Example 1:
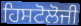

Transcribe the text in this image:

ਹਿਸਟੋਲੋਜੀ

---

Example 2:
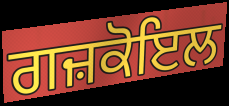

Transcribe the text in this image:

ਗਜ਼ਕੋਇਲ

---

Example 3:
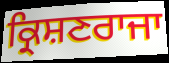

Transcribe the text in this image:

ਕ੍ਰਿਸ਼ਣਰਾਜਾ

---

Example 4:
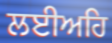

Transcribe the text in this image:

ਲਈਅਹਿ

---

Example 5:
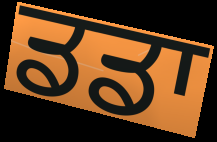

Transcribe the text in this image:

ਡਡਾ